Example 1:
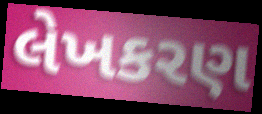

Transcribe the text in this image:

લેખકરણ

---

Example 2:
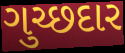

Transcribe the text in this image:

ગુચ્છદાર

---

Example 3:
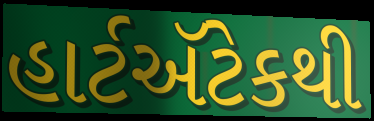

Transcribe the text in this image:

હાર્ટઍટેકથી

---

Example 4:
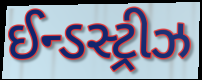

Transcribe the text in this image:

ઈન્ડસ્ટ્રીઝ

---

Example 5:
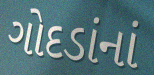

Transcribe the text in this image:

ગોદડાંનાં